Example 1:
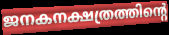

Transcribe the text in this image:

ജനകനക്ഷത്രത്തിന്റെ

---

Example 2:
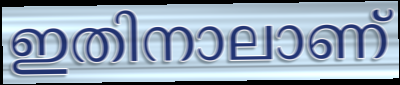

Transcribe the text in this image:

ഇതിനാലാണ്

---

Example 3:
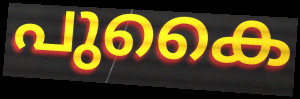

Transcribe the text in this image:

പുകൈ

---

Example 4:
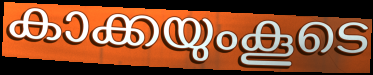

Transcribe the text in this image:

കാക്കയുംകൂടെ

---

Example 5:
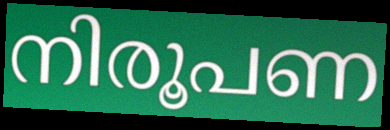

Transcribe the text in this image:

നിരൂപണ